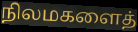
நிலமகளைத்